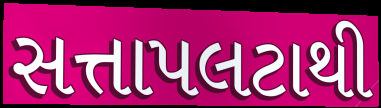
સત્તાપલટાથી